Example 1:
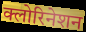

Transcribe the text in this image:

क्लोरिनेशन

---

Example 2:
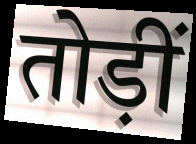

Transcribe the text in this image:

तोड़ीं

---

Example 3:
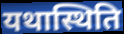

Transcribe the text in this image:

यथास्थिति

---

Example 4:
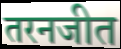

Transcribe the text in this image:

तरनजीत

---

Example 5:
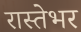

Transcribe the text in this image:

रास्तेभर